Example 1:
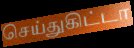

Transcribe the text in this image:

செய்துகிட்டா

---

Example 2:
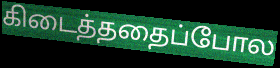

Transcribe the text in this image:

கிடைத்ததைப்போல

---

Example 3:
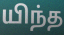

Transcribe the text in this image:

யிந்த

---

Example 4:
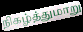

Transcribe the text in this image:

நிகழ்த்துமாறு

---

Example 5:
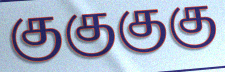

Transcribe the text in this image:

குகுகுகு